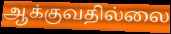
ஆக்குவதில்லை